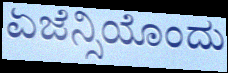
ಏಜೆನ್ಸಿಯೊಂದು